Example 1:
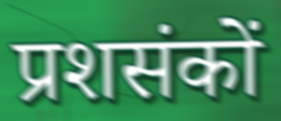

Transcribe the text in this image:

प्रशसंकों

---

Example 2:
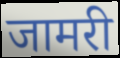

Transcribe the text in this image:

जामरी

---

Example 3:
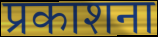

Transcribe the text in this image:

प्रकाशना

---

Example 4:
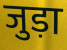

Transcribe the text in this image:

जुड़ा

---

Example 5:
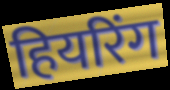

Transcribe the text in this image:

हियरिंग